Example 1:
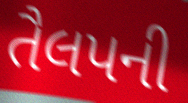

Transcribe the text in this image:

તૈલપની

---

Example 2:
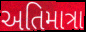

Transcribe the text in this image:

અતિમાત્રા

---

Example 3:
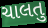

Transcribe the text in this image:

ચાલતુ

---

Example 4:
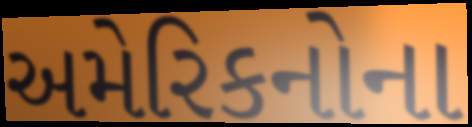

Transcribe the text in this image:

અમેરિકનોના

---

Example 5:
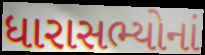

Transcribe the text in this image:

ધારાસભ્યોનાં